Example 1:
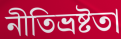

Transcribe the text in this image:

নীতিভ্রষ্টতা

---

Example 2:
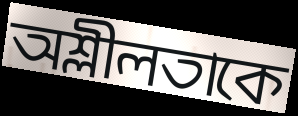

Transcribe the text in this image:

অশ্লীলতাকে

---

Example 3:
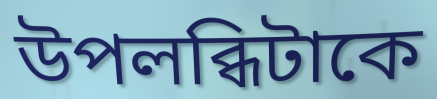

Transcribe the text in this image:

উপলব্ধিটাকে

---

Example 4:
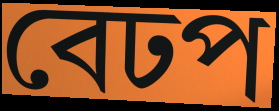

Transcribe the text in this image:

বেঢপ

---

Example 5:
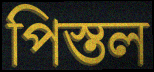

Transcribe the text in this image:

পিস্তল